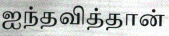
ஐந்தவித்தான்